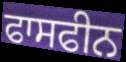
ਫਾਸਫੀਨ